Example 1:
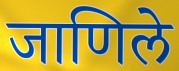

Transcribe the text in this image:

जाणिले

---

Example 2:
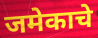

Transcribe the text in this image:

जमेकाचे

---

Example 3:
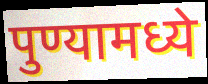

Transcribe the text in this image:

पुण्यामध्ये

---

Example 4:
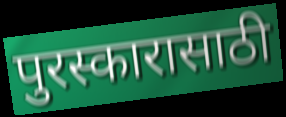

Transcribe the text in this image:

पुरस्कारासाठी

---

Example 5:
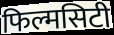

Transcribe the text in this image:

फिल्मसिटी